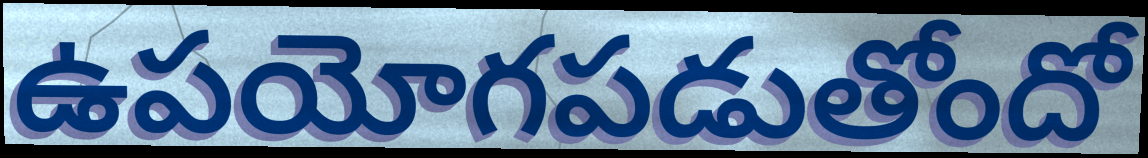
ఉపయోగపడుతోందో